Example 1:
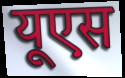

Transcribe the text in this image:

यूएस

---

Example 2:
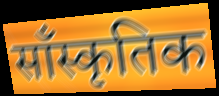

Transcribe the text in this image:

साँस्कृतिक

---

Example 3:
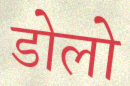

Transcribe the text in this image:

डोलो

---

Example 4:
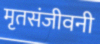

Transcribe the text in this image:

मृतसंजीवनी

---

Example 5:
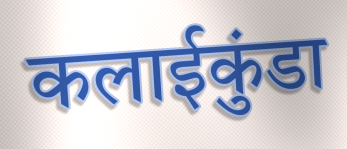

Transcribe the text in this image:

कलाईकुंडा